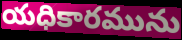
యధికారమును